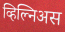
व्हिल्निअस